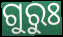
ଗୁରୁଃ